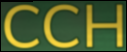
CCH